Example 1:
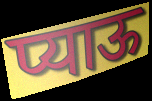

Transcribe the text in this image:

प्याऊ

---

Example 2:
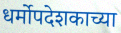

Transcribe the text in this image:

धर्मोपदेशकाच्या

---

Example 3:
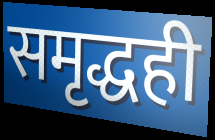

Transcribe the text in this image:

समृद्धही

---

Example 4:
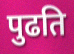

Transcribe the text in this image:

पुढति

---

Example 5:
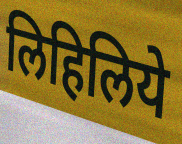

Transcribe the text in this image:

लिहिलिये